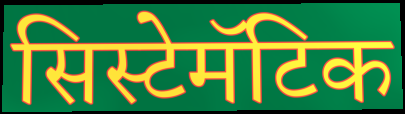
सिस्टेमॅटिक